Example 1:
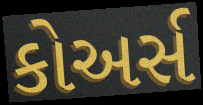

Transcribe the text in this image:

કોઅર્સ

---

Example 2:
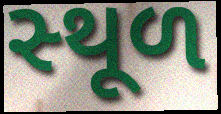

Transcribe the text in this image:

સ્‍થૂળ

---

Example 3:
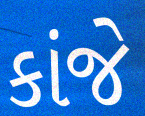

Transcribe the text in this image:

કાંજે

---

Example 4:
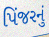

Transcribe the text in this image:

પિંજરનું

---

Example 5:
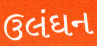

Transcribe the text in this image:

ઉલંઘન